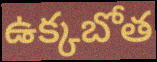
ఉక్కబోత